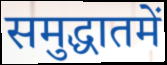
समुद्धातमें